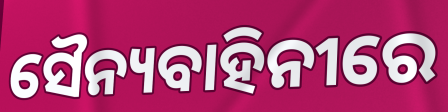
ସୈନ୍ୟବାହିନୀରେ